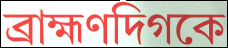
ব্রাহ্মণদিগকে